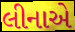
લીનાએ